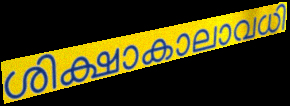
ശിക്ഷാകാലാവധി